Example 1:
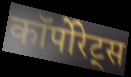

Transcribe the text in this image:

कॉर्पोरेट्स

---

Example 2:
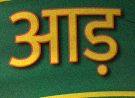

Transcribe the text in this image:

आड़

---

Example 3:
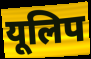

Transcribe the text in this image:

यूलिप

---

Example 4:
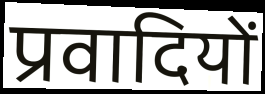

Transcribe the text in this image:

प्रवादियों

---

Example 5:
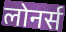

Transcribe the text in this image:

लोनर्स